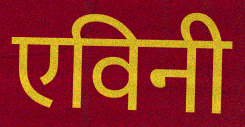
एविनी